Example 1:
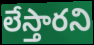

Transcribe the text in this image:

లేస్తారని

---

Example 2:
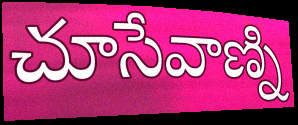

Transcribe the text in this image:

చూసేవాణ్ని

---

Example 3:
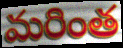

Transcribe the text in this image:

మరింత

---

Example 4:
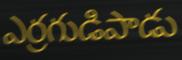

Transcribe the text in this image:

ఎర్రగుడిపాడు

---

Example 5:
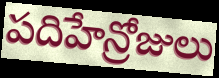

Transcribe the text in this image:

పదిహేన్రోజులు